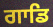
ਗਾਡਿ